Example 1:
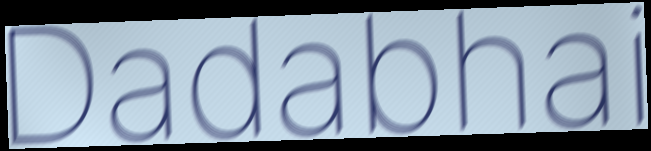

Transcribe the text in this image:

Dadabhai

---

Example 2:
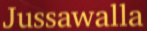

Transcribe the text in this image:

Jussawalla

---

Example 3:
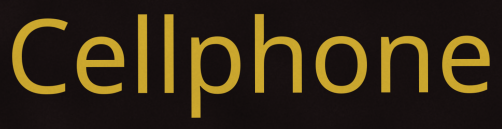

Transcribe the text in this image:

Cellphone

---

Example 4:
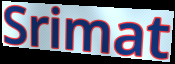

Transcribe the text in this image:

Srimat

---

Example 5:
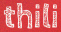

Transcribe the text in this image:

thili